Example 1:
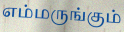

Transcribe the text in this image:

எம்மருங்கும்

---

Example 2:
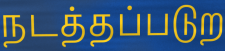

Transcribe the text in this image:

நடத்தப்படுற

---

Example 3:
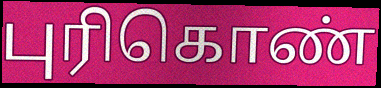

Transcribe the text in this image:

புரிகொண்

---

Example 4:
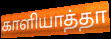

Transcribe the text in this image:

காளியாத்தா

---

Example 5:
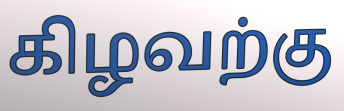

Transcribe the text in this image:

கிழவற்கு